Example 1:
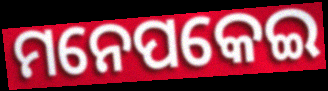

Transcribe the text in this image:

ମନେପକେଇ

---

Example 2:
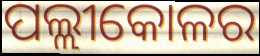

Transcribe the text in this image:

ପଲ୍ଲୀକୋଳର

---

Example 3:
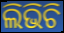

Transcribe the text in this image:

ଲିଭିଚି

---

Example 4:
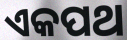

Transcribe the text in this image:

ଏକପଥ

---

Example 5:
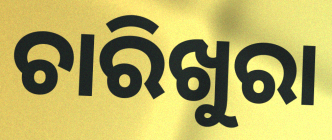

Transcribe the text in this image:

ଚାରିଖୁରା